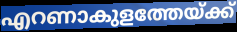
എറണാകുളത്തേയ്ക്ക്